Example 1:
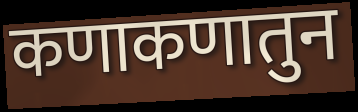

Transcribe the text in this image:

कणाकणातुन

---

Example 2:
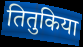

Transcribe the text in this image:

तितुकिया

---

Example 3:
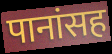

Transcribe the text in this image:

पानांसह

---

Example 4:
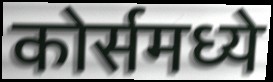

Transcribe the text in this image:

कोर्समध्ये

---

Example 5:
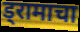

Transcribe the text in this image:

ड्रामाचा